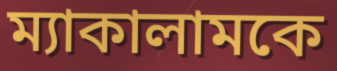
ম্যাকালামকে